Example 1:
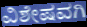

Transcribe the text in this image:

ವಿಶೇಷವಗಿ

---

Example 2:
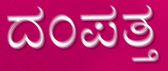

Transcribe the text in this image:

ದಂಪತ್ತ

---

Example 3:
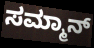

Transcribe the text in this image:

ಸಮ್ಮಾನ್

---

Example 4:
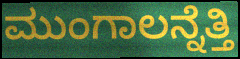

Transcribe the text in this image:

ಮುಂಗಾಲನ್ನೆತ್ತಿ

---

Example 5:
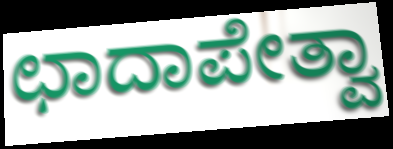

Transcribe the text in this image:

ಛಾದಾಪೇತ್ವಾ